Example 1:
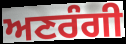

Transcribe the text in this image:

ਅਣਰੰਗੀ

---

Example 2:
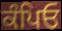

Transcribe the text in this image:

ਕੰਪਿਓ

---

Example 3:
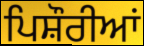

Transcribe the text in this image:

ਪਿਸ਼ੌਰੀਆਂ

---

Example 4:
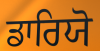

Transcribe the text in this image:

ਡਾਰਿਯੋ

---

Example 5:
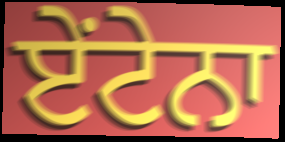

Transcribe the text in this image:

ਏਂਟੇਨਾ